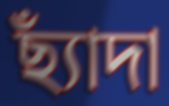
ছ্যাঁদা